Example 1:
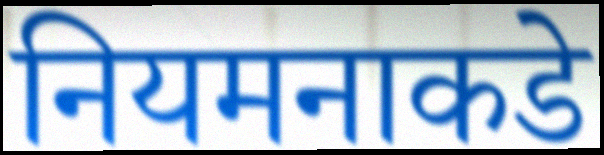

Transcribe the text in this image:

नियमनाकडे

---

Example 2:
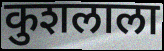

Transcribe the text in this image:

कुशलाला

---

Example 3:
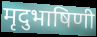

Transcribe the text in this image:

मृदुभाषिणी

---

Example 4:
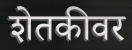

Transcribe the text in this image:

शेतकीवर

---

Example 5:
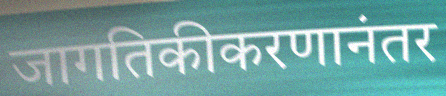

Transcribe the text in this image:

जागतिकीकरणानंतर